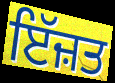
ਇੱਜ਼ਤ